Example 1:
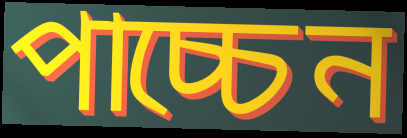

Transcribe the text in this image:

পাচ্চেন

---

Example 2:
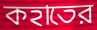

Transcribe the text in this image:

কহাতের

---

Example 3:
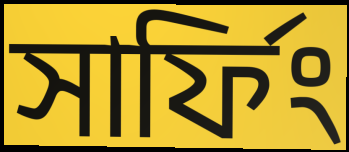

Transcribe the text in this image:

সার্ফিং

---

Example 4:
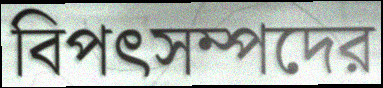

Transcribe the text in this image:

বিপৎসম্পদের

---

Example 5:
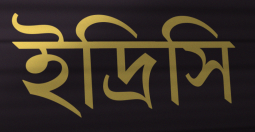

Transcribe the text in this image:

ইদ্রিসি